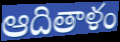
ఆదితాళం